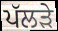
ਪੱਲੜੇ